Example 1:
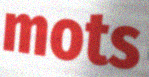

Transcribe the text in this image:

mots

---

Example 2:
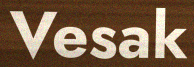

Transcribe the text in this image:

Vesak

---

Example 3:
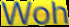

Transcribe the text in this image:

Woh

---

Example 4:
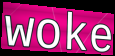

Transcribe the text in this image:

woke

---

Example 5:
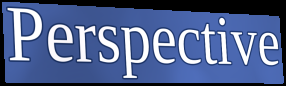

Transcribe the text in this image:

Perspective